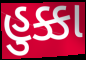
હુક્કા